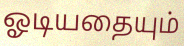
ஓடியதையும்